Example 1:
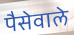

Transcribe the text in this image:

पैसेवाले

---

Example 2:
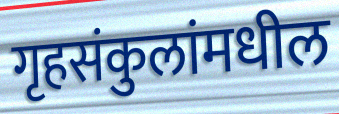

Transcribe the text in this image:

गृहसंकुलांमधील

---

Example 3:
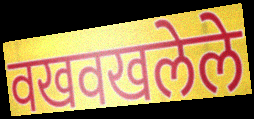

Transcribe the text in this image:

वखवखलेले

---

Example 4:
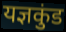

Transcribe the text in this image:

यज्ञकुंड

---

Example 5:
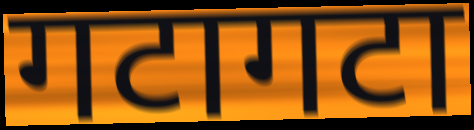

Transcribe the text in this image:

गटागटा